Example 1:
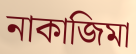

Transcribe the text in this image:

নাকাজিমা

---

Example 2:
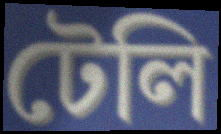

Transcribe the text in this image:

টেলি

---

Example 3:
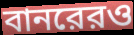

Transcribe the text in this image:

বানরেরও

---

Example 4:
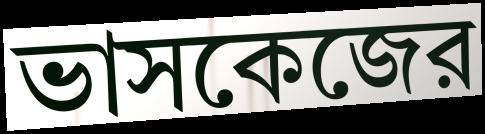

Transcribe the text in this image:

ভাসকেজের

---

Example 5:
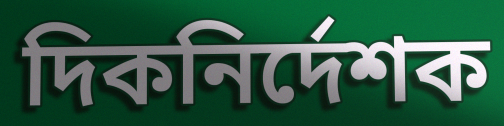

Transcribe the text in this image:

দিকনির্দেশক